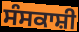
ਸੰਸਕਾਸ਼ੀ